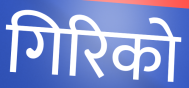
गिरिको